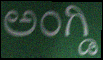
ಅಂಗ್ಡಿ